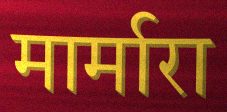
मार्मारा